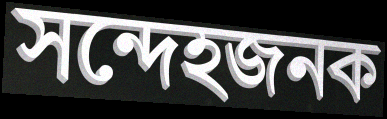
সন্দেহজনক